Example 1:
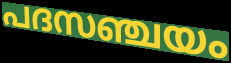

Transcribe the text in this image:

പദസഞ്ചയം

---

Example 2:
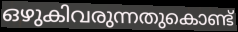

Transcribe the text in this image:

ഒഴുകിവരുന്നതുകൊണ്ട്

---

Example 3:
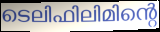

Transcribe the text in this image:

ടെലിഫിലിമിന്റെ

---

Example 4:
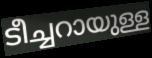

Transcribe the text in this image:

ടീച്ചറായുള്ള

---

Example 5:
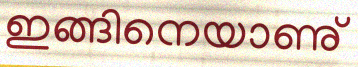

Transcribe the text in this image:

ഇങ്ങിനെയാണു്